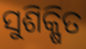
ସୁଶିକ୍ଷିତ